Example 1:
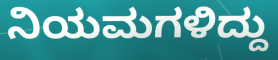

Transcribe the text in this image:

ನಿಯಮಗಳಿದ್ದು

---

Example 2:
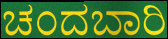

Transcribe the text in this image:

ಚಂದಬಾರಿ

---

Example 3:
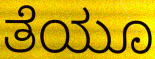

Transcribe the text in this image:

ತೆಯೂ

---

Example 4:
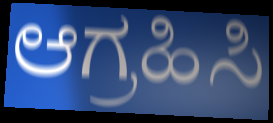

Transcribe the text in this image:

ಆಗ್ರಹಿಸಿ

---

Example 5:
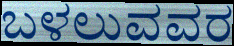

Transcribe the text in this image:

ಬಳಲುವವರ